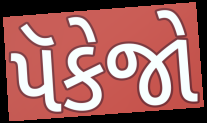
પૅકેજો